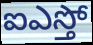
ఐఎస్తో